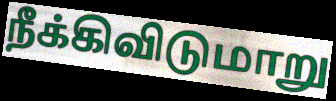
நீக்கிவிடுமாறு